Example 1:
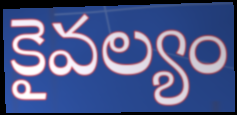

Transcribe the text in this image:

కైవల్యం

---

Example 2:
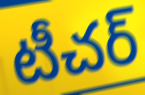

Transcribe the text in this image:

టీచర్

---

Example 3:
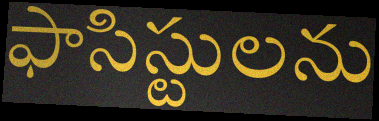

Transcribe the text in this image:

ఫాసిస్టులను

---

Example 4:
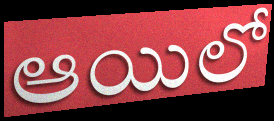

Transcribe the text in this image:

ఆయిలో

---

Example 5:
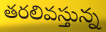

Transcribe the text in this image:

తరలివస్తున్న